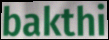
bakthi